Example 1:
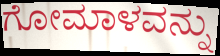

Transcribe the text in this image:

ಗೋಮಾಳವನ್ನು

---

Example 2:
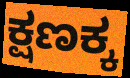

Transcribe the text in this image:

ಕ್ಷಣಕ್ಕ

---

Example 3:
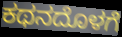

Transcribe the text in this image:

ಕಥನದೊಳಗೆ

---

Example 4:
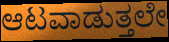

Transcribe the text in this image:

ಆಟವಾಡುತ್ತಲೇ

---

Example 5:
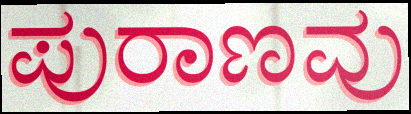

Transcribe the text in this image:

ಪುರಾಣವು